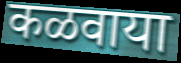
कळवाया